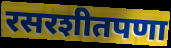
रसरशीतपणा